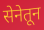
सेनेतून